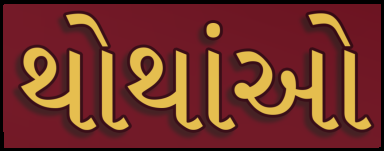
થોથાંઓ